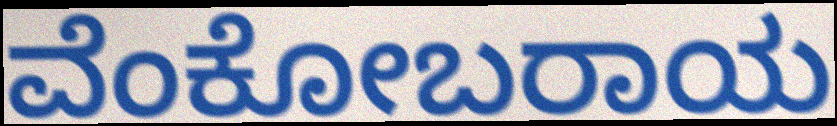
ವೆಂಕೋಬರಾಯ